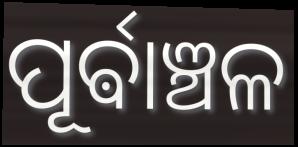
ପୂର୍ଵାଞ୍ଚଳ